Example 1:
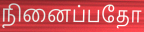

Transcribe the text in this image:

நினைப்பதோ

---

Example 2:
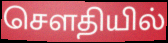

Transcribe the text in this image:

செளதியில்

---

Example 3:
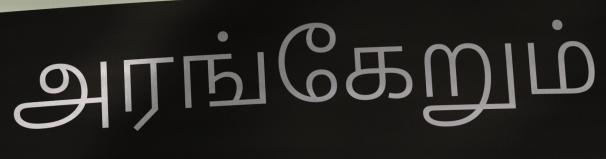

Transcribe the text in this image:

அரங்கேறும்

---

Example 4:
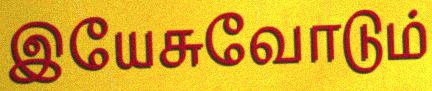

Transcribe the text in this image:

இயேசுவோடும்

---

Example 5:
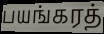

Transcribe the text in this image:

பயங்கரத்